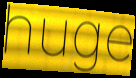
huge